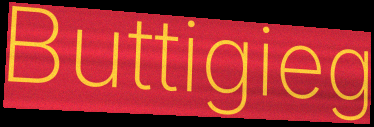
Buttigieg